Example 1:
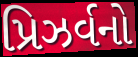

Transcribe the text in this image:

પ્રિઝર્વનો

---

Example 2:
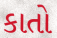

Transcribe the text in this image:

કાતો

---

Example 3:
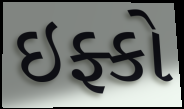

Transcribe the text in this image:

ઇફ્કો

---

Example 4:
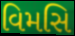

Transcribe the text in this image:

વિમસિ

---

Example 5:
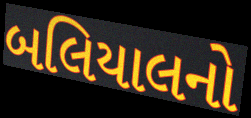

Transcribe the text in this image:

બલિયાલનો